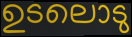
ഉടലൊടു